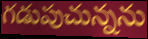
గడుపుచున్నను